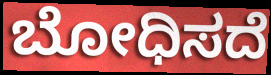
ಬೋಧಿಸದೆ